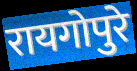
रायगोपुरे